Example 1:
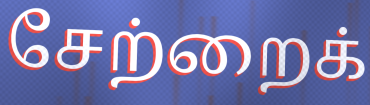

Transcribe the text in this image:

சேற்றைக்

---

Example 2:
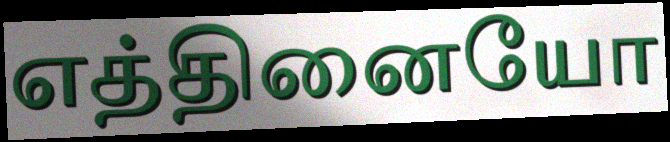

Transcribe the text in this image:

எத்தினையோ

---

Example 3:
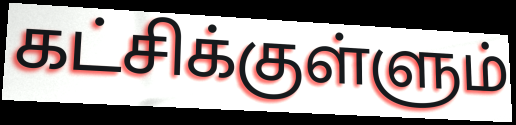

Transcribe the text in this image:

கட்சிக்குள்ளும்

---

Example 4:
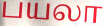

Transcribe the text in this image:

பயலா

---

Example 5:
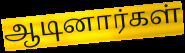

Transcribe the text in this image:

ஆடினார்கள்